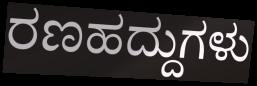
ರಣಹದ್ದುಗಳು